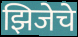
झिजेचे